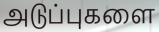
அடுப்புகளை